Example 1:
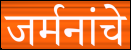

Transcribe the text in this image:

जर्मनांचे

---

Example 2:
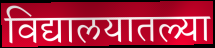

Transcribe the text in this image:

विद्यालयातल्या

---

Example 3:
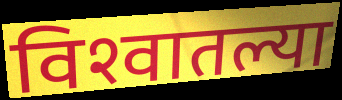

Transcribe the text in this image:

विश्वातल्या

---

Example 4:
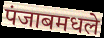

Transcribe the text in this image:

पंजाबमधले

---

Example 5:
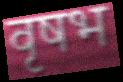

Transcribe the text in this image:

वृषभ